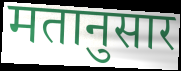
मतानुसार